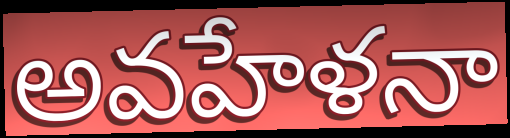
అవహేళనా